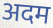
अदम